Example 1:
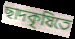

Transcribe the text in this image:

ছাদকৃষিতে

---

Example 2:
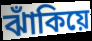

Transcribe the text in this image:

ঝাঁকিয়ে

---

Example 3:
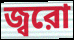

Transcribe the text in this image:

জ্বরো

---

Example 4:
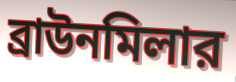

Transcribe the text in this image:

ব্রাউনমিলার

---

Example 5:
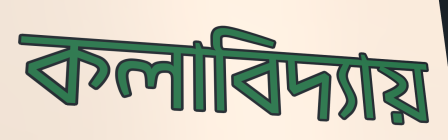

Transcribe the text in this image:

কলাবিদ্যায়